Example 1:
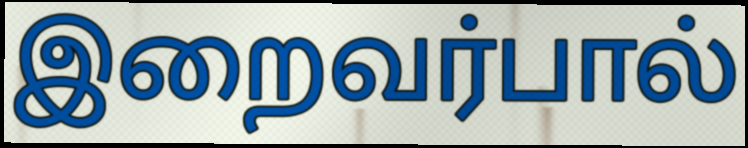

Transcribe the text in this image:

இறைவர்பால்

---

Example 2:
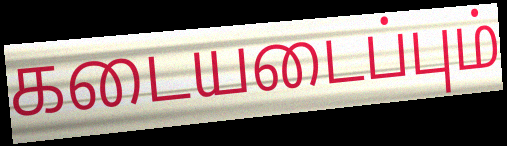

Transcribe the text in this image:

கடையடைப்பும்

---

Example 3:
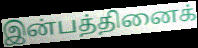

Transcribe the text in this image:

இன்பத்தினைக்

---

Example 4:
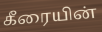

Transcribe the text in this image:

கீரையின்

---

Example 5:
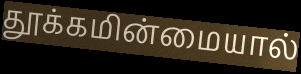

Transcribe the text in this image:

தூக்கமின்மையால்